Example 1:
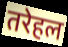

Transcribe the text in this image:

तरेहल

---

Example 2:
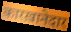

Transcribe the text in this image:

कारख़ानेदार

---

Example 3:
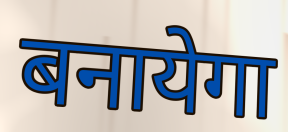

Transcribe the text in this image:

बनायेगा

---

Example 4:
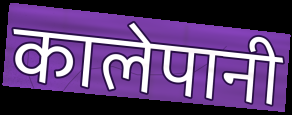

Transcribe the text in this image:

कालेपानी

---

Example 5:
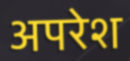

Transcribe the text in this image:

अपरेश